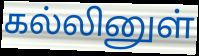
கல்லினுள்